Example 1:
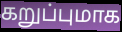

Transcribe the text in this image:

கறுப்புமாக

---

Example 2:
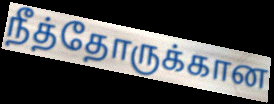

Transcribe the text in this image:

நீத்தோருக்கான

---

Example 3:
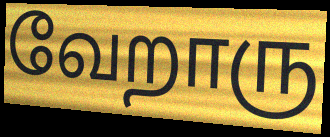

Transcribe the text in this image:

வேறாரு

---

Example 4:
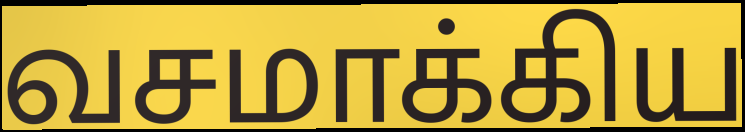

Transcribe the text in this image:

வசமாக்கிய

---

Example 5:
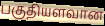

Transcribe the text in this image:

பகுதியளவான